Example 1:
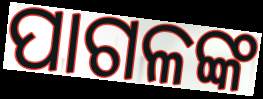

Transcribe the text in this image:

ପାଗଳଙ୍କ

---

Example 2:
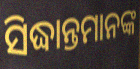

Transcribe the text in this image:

ସିଦ୍ଧାନ୍ତମାନଙ୍କ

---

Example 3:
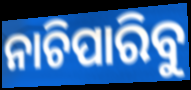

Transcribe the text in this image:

ନାଚିପାରିବୁ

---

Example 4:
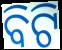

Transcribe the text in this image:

ବିଟି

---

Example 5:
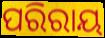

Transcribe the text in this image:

ପରିରାୟ